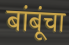
बांबूंचा